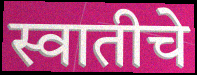
स्वातीचे